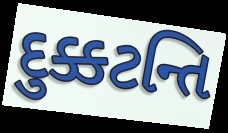
દુક્કટન્તિ